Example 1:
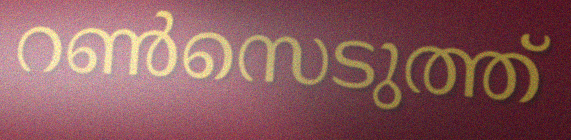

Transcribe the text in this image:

റൺസെടുത്ത്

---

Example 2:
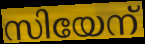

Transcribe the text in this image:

സിയേന്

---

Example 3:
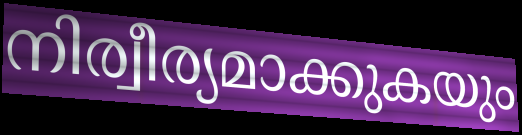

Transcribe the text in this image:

നിര്വീര്യമാക്കുകയും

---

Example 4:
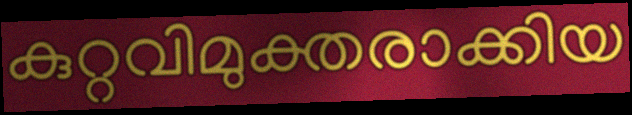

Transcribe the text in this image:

കുറ്റവിമുക്തരാക്കിയ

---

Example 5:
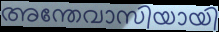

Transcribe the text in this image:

അന്തേവാസിയായി